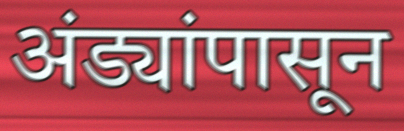
अंड्यांपासून